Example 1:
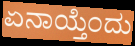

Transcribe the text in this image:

ಏನಾಯ್ತೆಂದು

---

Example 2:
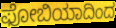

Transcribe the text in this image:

ಫೋಬಿಯಾದಿಂದ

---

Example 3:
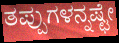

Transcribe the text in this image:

ತಪ್ಪುಗಳನ್ನಷ್ಟೇ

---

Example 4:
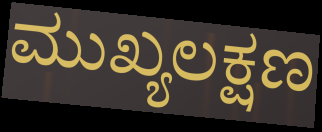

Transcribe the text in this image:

ಮುಖ್ಯಲಕ್ಷಣ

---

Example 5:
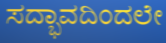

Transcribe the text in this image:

ಸದ್ಭಾವದಿಂದಲೇ